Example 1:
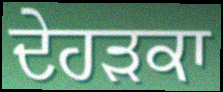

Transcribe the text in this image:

ਦੇਹੜਕਾ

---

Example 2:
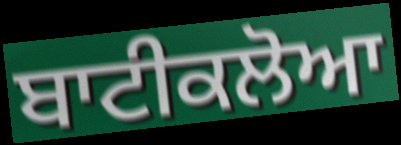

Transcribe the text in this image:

ਬਾਟੀਕਲੋਆ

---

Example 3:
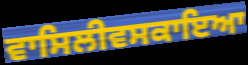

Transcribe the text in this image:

ਵਾਸਿਲੀਵਸਕਾਇਆ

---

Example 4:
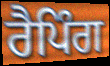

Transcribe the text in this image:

ਰੈਪਿੰਗ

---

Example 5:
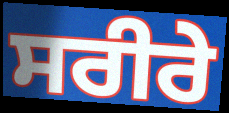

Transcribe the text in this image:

ਸਰੀਰੇ